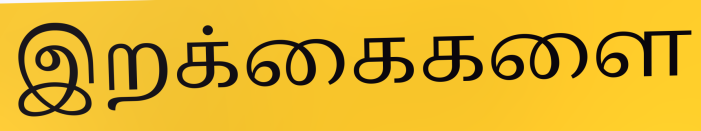
இறக்கைகளை